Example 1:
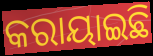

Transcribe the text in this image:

କରାୟାଇଛି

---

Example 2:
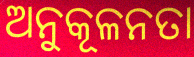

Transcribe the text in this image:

ଅନୁକୂଳନତା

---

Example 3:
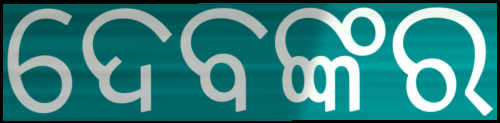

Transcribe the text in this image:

ଦେବଙ୍କର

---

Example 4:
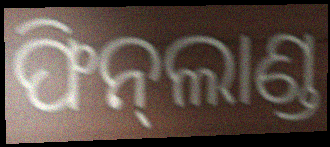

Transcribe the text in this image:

ଫିନ୍‌ଲାଣ୍ଡ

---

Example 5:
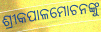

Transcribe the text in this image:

ଶ୍ରୀକପାଳମୋଚନଙ୍କୁ